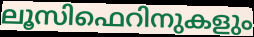
ലൂസിഫെറിനുകളും